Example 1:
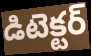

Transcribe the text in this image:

డిటెక్టర్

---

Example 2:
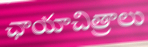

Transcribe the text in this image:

ఛాయాచిత్రాలు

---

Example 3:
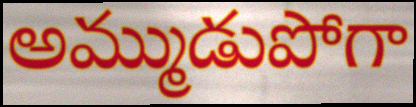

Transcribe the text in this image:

అమ్ముడుపోగా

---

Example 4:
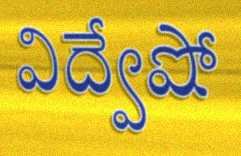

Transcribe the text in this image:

విద్వేషో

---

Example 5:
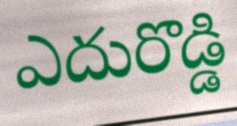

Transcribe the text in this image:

ఎదురొడ్డి